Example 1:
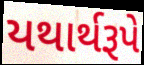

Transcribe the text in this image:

યથાર્થરૂપે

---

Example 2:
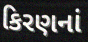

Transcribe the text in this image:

કિરણનાં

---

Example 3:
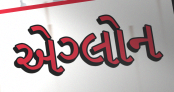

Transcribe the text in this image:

એગ્લોન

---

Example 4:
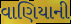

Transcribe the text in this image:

વાણિયાની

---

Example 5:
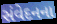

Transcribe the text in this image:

સંવેદનના